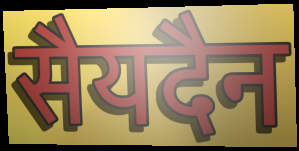
सैयदैन